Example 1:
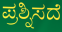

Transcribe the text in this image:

ಪ್ರಶ್ನಿಸದೆ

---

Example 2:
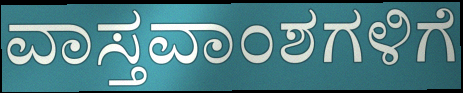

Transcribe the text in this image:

ವಾಸ್ತವಾಂಶಗಳಿಗೆ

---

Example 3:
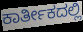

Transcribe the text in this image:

ಕಾರ್ತೀಕದಲ್ಲಿ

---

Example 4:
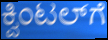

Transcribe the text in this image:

ಕ್ವಿಂಟಲ್‌ಗೆ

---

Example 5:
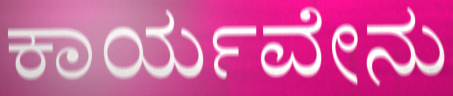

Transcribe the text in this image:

ಕಾರ್ಯವೇನು